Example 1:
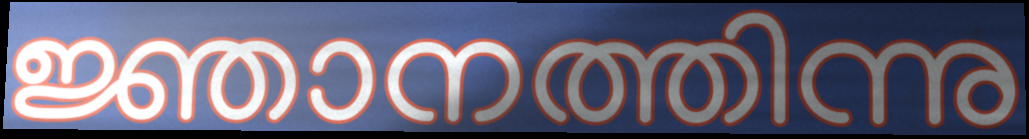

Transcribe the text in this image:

ജ്ഞാനത്തിന്നു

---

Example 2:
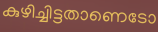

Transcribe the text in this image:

കുഴിച്ചിട്ടതാണെടോ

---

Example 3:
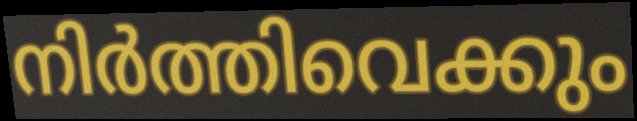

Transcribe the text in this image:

നിർത്തിവെക്കും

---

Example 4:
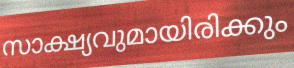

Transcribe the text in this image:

സാക്ഷ്യവുമായിരിക്കും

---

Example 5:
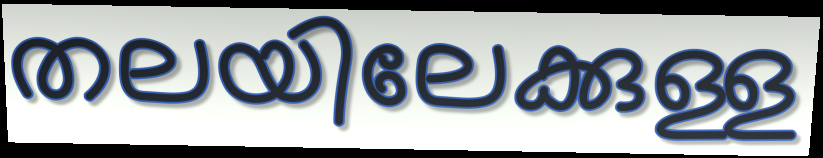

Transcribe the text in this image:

തലയിലേക്കുള്ള